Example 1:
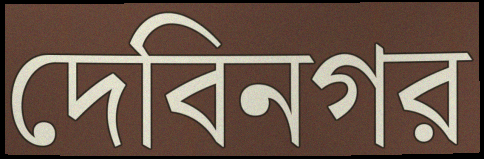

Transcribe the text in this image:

দেবিনগর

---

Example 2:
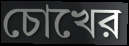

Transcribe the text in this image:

চোখের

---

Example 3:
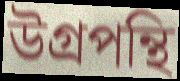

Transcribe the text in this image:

উগ্রপন্থি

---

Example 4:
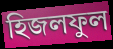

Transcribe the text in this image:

হিজলফুল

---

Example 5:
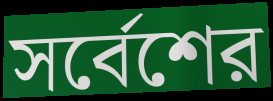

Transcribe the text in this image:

সর্বেশের